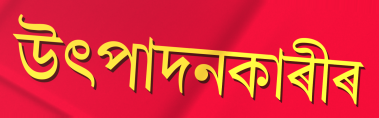
উৎপাদনকাৰীৰ